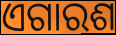
ଏଗାରଶ